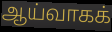
ஆய்வாகக்